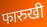
फारुखी